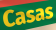
Casas